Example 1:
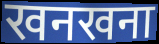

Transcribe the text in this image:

खनखना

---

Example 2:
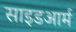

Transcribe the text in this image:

साइडआर्म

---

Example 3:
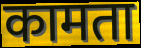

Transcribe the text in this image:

कामता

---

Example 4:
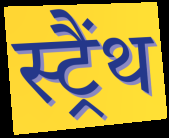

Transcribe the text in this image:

स्ट्रैंथ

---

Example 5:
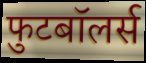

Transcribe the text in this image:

फुटबॉलर्स